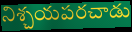
నిశ్చయపరచాడు